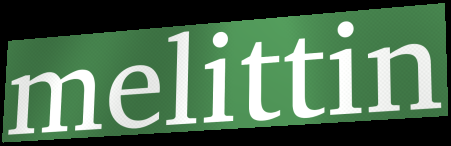
melittin